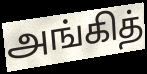
அங்கித்